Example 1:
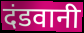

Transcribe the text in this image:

दंडवानी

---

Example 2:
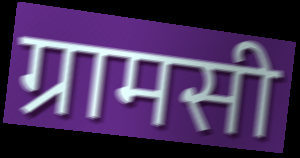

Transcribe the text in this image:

ग्रामसी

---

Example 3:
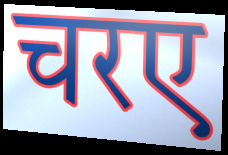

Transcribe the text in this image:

चरए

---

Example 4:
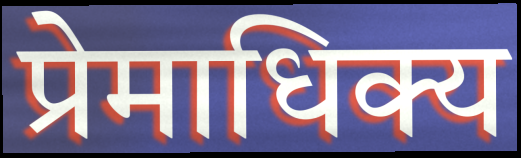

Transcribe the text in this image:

प्रेमाधिक्य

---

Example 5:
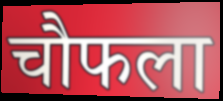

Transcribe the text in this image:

चौफला